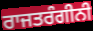
ਰਾਜਤਰੰਗੀਨੀ